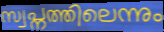
സ്വപ്നത്തിലെന്നും